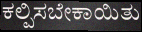
ಕಲ್ಪಿಸಬೇಕಾಯಿತು